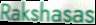
Rakshasas